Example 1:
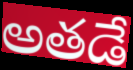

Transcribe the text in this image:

అతడే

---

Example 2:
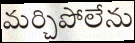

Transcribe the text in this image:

మర్చిపోలేను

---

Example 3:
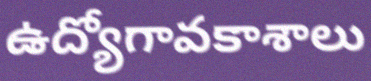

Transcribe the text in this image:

ఉద్యోగావకాశాలు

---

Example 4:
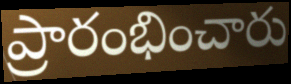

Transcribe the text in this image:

ప్రారంభించారు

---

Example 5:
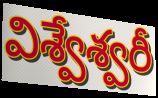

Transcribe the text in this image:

విశ్వేశ్వరీ